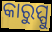
କାରୁପ୍ପୁ